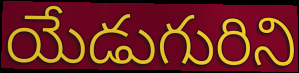
యేడుగురిని